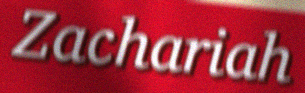
Zachariah